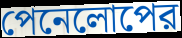
পেনেলোপের